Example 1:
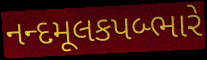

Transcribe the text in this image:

નન્દમૂલકપબ્ભારે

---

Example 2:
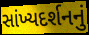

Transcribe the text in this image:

સાંખ્યદર્શનનું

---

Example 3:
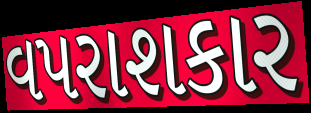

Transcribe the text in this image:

વપરાશકાર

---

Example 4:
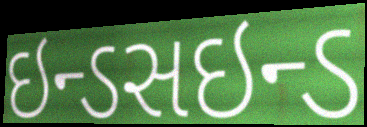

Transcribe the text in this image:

ઇન્ડસઇન્ડ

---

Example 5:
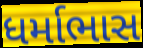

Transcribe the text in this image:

ધર્માભાસ